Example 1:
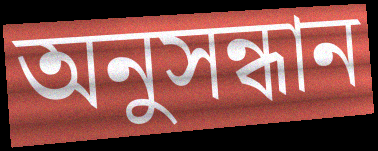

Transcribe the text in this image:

অনুসন্ধান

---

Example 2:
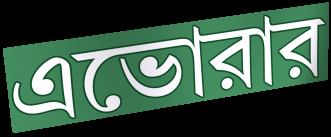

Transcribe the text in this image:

এভোরার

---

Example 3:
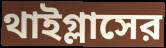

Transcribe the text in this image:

থাইগ্লাসের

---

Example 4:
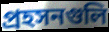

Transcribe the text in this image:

প্রহসনগুলি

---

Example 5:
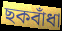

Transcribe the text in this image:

ছকবাঁধা